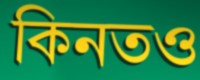
কিনতও